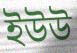
ইউউ